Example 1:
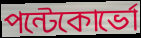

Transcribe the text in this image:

পন্টেকোর্ভো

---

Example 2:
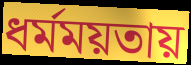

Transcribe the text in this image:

ধর্মময়তায়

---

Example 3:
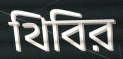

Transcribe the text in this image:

থিবির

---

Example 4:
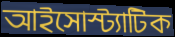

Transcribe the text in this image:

আইসোস্ট্যাটিক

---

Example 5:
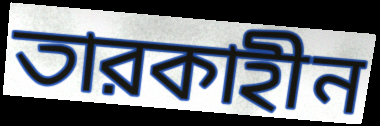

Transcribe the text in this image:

তারকাহীন